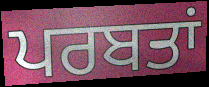
ਪਰਬਤਾਂ